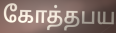
கோத்தபய